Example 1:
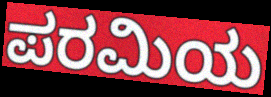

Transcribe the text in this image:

ಪರಮಿಯ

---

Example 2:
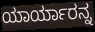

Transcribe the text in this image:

ಯಾರ್ಯಾರನ್ನ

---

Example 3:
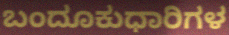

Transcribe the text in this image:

ಬಂದೂಕುಧಾರಿಗಳ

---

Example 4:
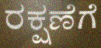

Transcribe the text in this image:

ರಕ್ಷಣೆಗೆ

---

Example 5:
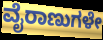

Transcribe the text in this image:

ವೈರಾಣುಗಳೇ